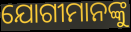
ଯୋଗୀମାନଙ୍କୁ